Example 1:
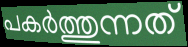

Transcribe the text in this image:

പകർത്തുന്നത്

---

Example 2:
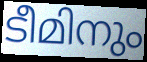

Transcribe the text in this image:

ടീമിനും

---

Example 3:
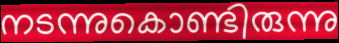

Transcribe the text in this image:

നടന്നുകൊണ്ടിരുന്നു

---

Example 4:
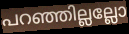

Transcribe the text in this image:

പറഞ്ഞില്ലല്ലോ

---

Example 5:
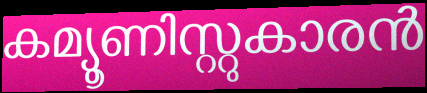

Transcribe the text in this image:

കമ്യൂണിസ്റ്റുകാരൻ